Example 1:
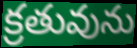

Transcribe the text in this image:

క్రతువును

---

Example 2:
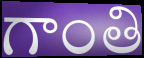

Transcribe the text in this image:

గాంతి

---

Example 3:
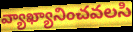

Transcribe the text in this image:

వ్యాఖ్యానించవలసి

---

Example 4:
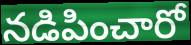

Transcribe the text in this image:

నడిపించారో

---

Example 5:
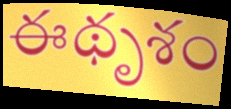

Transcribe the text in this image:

ఈథృశం